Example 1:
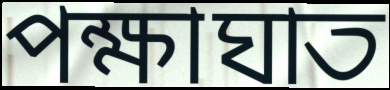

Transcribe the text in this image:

পক্ষাঘাত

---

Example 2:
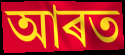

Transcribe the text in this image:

আৰত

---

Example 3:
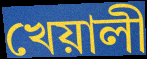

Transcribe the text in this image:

খেয়ালী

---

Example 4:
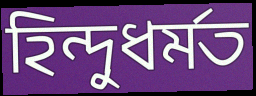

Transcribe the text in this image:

হিন্দুধৰ্মত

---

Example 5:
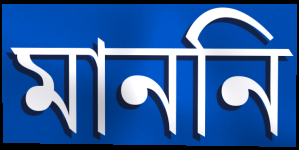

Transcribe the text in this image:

মাননি